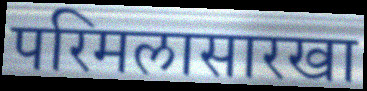
परिमलासारखा